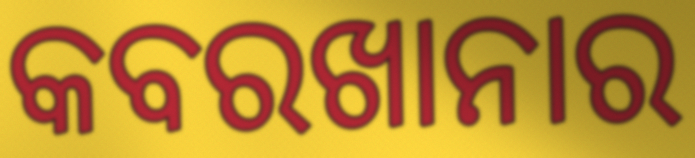
କବରଖାନାର